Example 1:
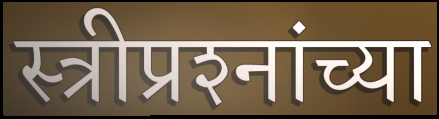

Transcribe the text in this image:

स्त्रीप्रश्नांच्या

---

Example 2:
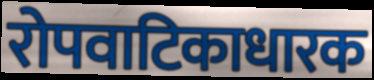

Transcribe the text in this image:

रोपवाटिकाधारक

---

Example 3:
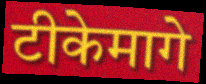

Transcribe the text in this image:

टीकेमागे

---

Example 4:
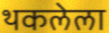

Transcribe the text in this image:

थकलेला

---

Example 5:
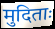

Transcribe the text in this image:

मुदिताः